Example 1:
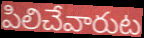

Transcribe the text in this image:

పిలిచేవారుట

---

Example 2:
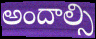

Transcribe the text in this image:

అందాల్సి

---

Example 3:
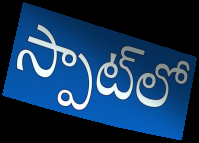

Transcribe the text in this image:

స్పాట్‌లో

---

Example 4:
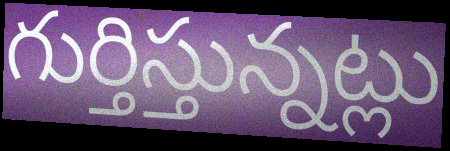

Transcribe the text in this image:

గుర్తిస్తున్నట్లు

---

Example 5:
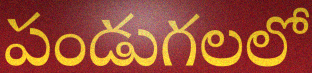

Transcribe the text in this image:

పండుగలలో